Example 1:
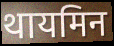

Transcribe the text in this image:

थायमिन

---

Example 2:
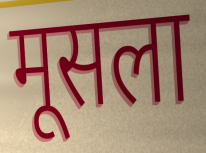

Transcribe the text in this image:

मूसला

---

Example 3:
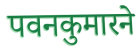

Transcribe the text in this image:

पवनकुमारने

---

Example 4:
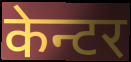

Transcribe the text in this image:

केन्टर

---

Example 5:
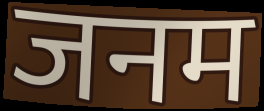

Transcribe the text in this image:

जनम